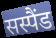
सस्पैंड